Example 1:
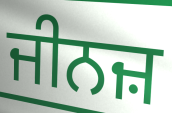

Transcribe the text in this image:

ਜੀਨਜ਼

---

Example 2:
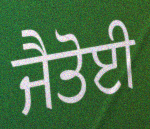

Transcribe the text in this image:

ਜੈਤੋਈ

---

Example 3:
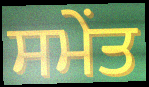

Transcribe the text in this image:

ਸਮੇਂਤ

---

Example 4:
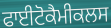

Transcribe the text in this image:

ਫਾਈਟੋਕੈਮੀਕਲਸ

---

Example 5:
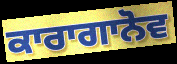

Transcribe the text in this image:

ਕਾਰਾਗਾਨੋਵ